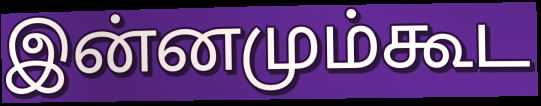
இன்னமும்கூட